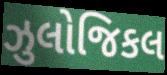
ઝુલોજિકલ